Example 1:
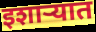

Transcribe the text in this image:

इशाऱ्यात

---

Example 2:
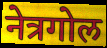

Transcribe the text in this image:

नेत्रगोल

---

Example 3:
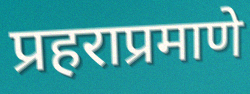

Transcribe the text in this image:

प्रहराप्रमाणे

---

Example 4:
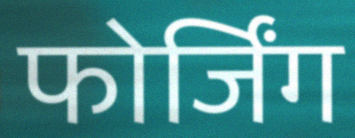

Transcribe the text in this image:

फोर्जिंग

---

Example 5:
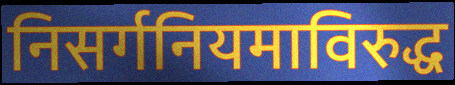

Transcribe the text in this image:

निसर्गनियमाविरुद्ध